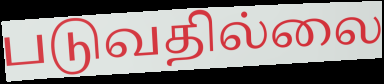
படுவதில்லை